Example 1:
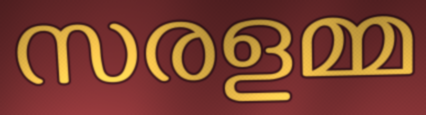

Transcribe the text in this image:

സരളമ്മ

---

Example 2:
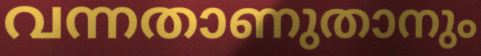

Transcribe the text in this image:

വന്നതാണുതാനും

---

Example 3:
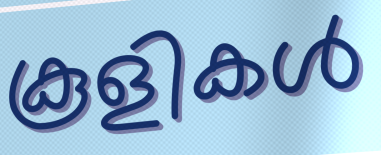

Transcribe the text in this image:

കൂളികൾ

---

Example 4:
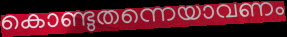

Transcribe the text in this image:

കൊണ്ടുതന്നെയാവണം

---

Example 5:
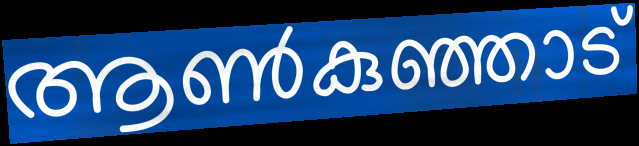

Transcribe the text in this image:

ആൺകുഞ്ഞാട്